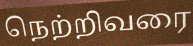
நெற்றிவரை